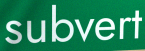
subvert